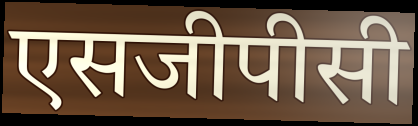
एसजीपीसी